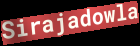
Sirajadowla